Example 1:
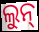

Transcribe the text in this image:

ଲୁନ୍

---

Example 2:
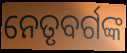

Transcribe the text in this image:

ନେତୃବର୍ଗଙ୍କ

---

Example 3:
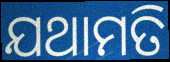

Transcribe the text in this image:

ଯଥାମତି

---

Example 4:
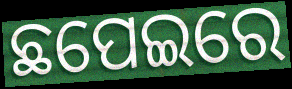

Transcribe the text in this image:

ଛପେଇରେ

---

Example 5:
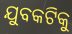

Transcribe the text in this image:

ଯୁବକଟିକୁ